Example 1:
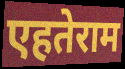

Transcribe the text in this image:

एहतेराम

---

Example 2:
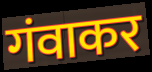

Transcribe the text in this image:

गंवाकर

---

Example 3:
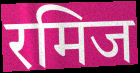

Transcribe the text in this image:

रमिज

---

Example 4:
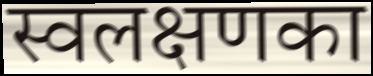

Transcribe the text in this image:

स्वलक्षणका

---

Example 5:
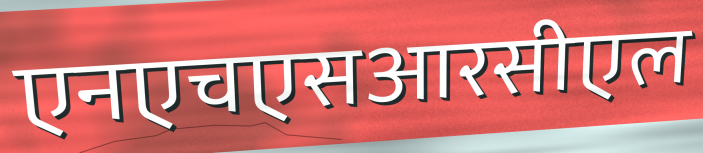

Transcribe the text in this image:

एनएचएसआरसीएल